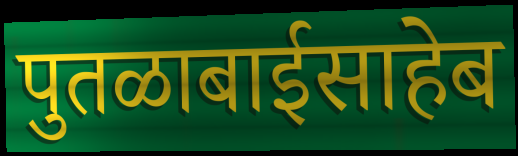
पुतळाबाईसाहेब